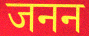
जनन